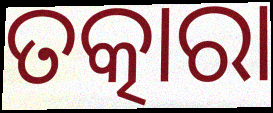
ତତ୍କାରା